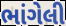
ભાંગેલી